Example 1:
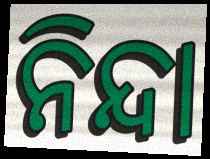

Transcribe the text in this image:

ନିନ୍ଦା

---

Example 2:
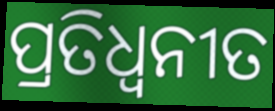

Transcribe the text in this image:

ପ୍ରତିଧ୍ବନୀତ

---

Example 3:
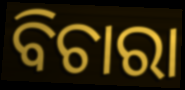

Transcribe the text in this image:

ବିଚାରା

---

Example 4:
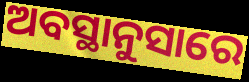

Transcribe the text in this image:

ଅବସ୍ଥାନୁସାରେ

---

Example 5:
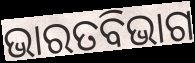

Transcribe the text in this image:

ଭାରତବିଭାଗ